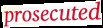
prosecuted